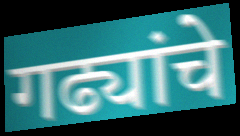
गढ्यांचे